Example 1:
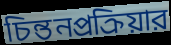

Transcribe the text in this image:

চিন্তনপ্রক্রিয়ার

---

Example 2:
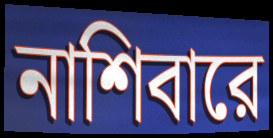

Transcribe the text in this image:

নাশিবারে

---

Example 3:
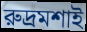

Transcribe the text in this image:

রুদ্রমশাই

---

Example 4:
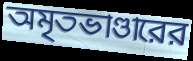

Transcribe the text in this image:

অমৃতভাণ্ডারের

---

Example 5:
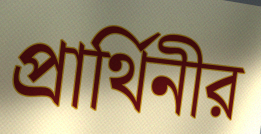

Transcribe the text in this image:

প্রার্থিনীর